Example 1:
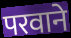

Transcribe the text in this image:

परवाने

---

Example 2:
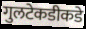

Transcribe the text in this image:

गुलटेकडीकडे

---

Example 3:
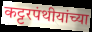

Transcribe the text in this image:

कट्टरपंथीयांच्या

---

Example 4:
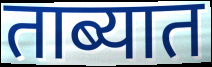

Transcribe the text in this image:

ताब्यात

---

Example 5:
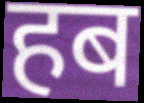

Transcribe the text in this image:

हब